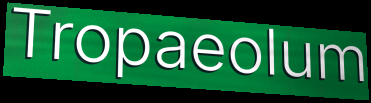
Tropaeolum